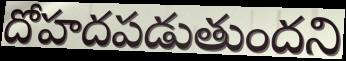
దోహదపడుతుందని